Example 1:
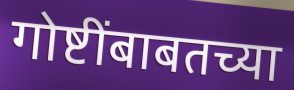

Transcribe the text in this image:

गोष्टींबाबतच्या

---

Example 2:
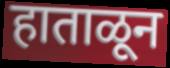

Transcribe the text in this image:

हाताळून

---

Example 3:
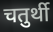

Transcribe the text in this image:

चतुर्थी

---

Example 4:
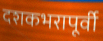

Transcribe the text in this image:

दशकभरापूर्वी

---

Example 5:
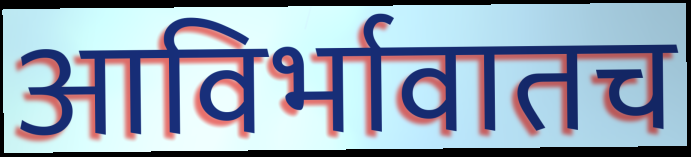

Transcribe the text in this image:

आविर्भावातच